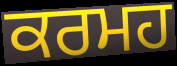
ਕਰਮਹ